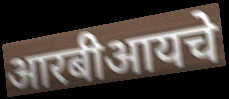
आरबीआयचे